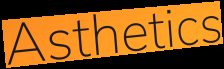
Asthetics